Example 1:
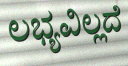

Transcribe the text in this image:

ಲಭ್ಯವಿಲ್ಲದೆ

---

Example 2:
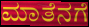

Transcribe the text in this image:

ಮಾತೆನಗೆ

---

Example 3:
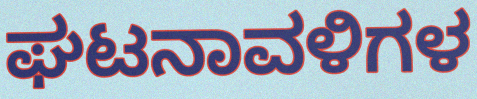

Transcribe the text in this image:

ಘಟನಾವಳಿಗಳ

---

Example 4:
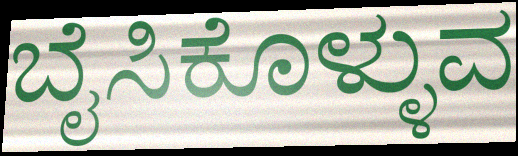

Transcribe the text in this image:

ಬೈಸಿಕೊಳ್ಳುವ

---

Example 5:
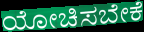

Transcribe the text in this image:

ಯೋಚಿಸಬೇಕೆ